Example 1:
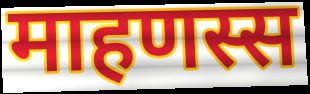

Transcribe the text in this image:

माहणस्स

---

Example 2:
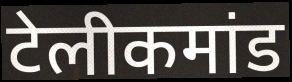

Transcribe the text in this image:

टेलीकमांड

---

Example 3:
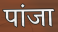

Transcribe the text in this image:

पांजा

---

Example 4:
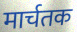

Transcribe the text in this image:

मार्चतक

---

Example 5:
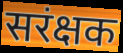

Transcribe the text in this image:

सरंक्षक